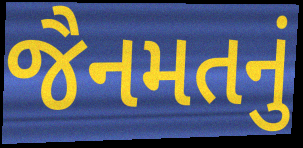
જૈનમતનું